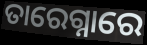
ତାରେଗ୍ନାରେ